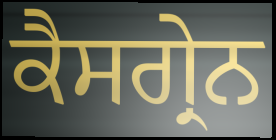
ਕੈਸਗ੍ਰੇਨ